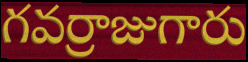
గవర్రాజుగారు